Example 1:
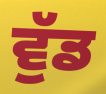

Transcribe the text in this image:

ਵੁੱਡ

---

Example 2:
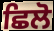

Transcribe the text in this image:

ਛਿਲੋ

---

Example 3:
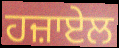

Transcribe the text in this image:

ਹਜ਼ਾਏਲ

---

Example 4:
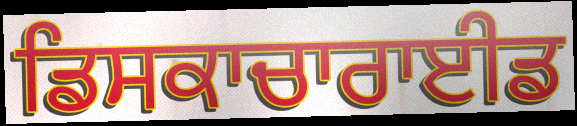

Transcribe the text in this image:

ਡਿਸਕਾਚਾਰਾਈਡ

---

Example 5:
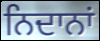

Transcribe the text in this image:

ਨਿਦਾਨਾਂ